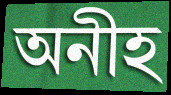
অনীহ